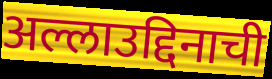
अल्लाउद्दिनाची